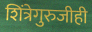
शिंत्रेगुरुजीही